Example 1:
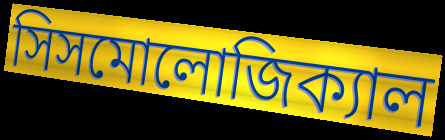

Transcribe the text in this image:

সিসমোলোজিক্যাল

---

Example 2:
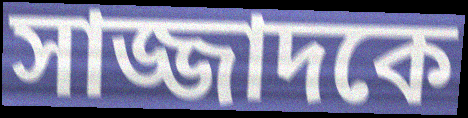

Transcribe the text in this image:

সাজ্জাদকে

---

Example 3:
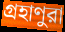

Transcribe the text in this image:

গ্রহাণুরা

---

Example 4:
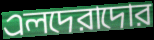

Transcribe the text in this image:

এলদেরাদোর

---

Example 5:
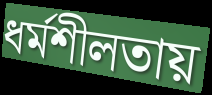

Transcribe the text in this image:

ধর্মশীলতায়